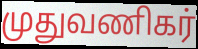
முதுவணிகர்